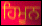
ਹਿਮੂਨ